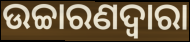
ଉଚ୍ଚାରଣଦ୍ଵାରା